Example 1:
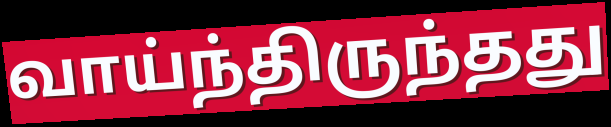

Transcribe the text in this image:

வாய்ந்திருந்தது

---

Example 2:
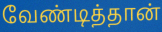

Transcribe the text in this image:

வேண்டித்தான்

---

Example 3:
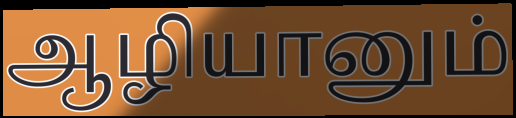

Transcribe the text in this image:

ஆழியானும்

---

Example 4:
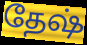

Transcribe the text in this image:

தேஷ்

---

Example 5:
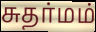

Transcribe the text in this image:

சுதர்மம்